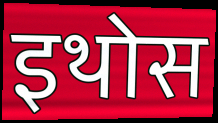
इथोस